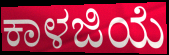
ಕಾಳಜಿಯೆ